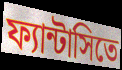
ফ্যান্টাসিতে